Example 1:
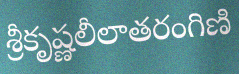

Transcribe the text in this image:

శ్రీకృష్ణలీలాతరంగిణి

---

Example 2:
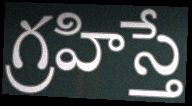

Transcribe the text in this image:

గ్రహిస్తే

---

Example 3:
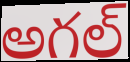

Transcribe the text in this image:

అగల్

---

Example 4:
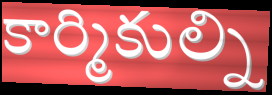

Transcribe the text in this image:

కార్మికుల్ని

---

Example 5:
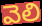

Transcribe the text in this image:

వెలి